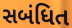
સબંધિત